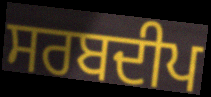
ਸਰਬਦੀਪ